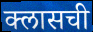
क्लासची